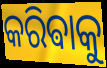
କରିଵାକୁ